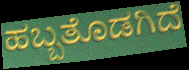
ಹಬ್ಬತೊಡಗಿದೆ